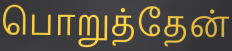
பொறுத்தேன்